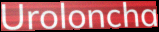
Uroloncha